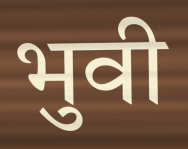
भुवी